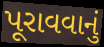
પૂરાવવાનું